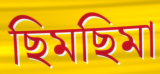
ছিমছিমা